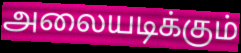
அலையடிக்கும்